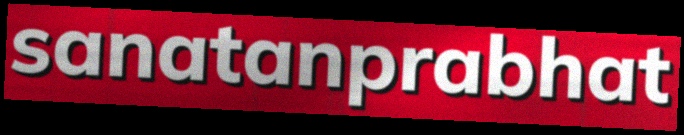
sanatanprabhat